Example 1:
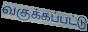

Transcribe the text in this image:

வகுக்கப்பட்டு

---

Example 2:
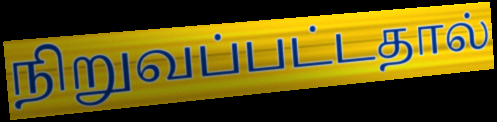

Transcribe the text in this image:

நிறுவப்பட்டதால்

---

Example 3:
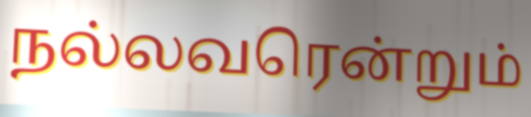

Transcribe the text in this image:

நல்லவரென்றும்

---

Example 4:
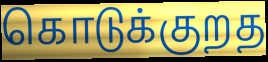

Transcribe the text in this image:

கொடுக்குறத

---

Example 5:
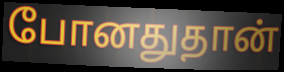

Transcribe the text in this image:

போனதுதான்